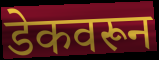
डेकवरून